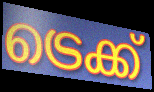
ട്രെക്ക്